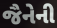
જૈનેની